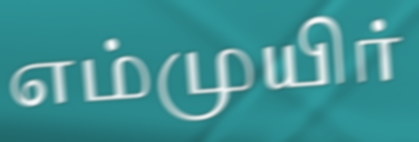
எம்முயிர்